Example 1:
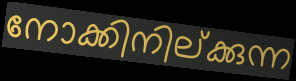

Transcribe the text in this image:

നോക്കിനില്ക്കുന്ന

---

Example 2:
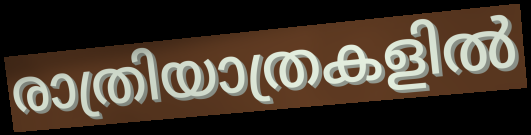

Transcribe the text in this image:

രാത്രിയാത്രകളിൽ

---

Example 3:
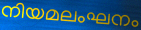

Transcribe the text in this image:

നിയമലംഘനം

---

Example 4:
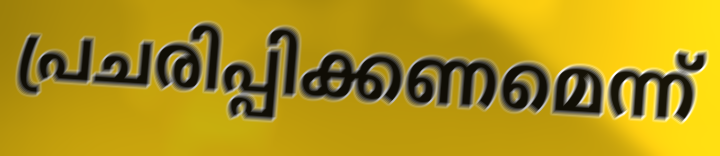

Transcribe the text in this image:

പ്രചരിപ്പിക്കണമെന്ന്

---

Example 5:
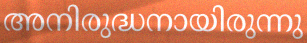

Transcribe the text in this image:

അനിരുദ്ധനായിരുന്നു